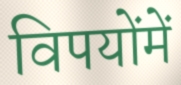
विपयोंमें